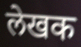
लेखक